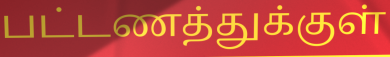
பட்டணத்துக்குள்